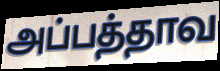
அப்பத்தாவ